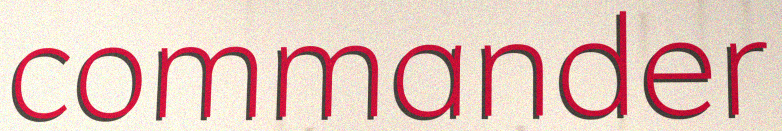
commander